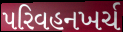
પરિવહનખર્ચ